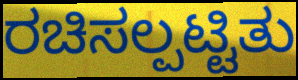
ರಚಿಸಲ್ಪಟ್ಟಿತು